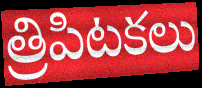
త్రిపిటకలు